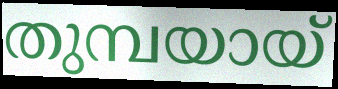
തുമ്പയായ്